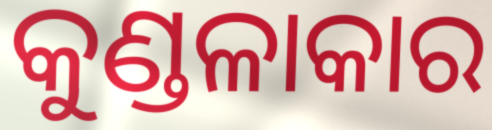
କୁଣ୍ଡଳାକାର